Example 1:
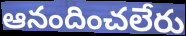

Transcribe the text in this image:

ఆనందించలేరు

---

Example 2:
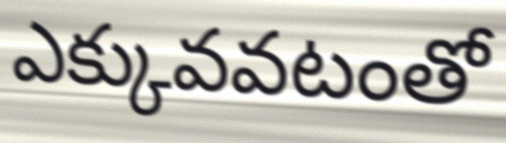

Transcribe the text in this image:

ఎక్కువవటంతో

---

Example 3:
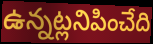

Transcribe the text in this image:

ఉన్నట్లనిపించేది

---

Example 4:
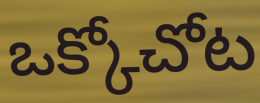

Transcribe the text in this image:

ఒక్కోచోట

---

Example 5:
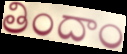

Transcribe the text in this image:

తిందాం